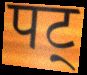
पट्